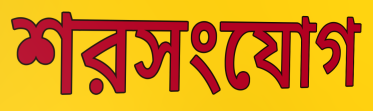
শরসংযোগ